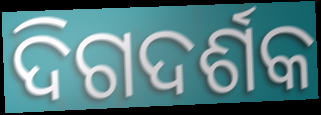
ଦିଗଦର୍ଶକ